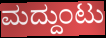
ಮದ್ದುಂಟು